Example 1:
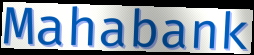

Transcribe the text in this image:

Mahabank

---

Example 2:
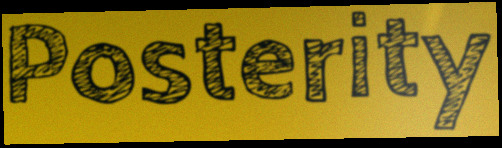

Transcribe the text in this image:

Posterity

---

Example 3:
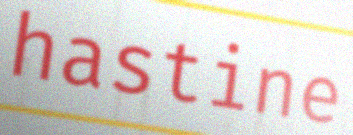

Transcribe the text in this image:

hastine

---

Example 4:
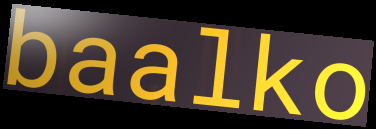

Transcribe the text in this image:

baalko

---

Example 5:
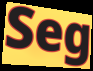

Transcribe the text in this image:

Seg